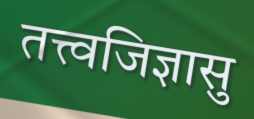
तत्त्वजिज्ञासु